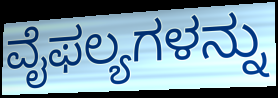
ವೈಫಲ್ಯಗಳನ್ನು